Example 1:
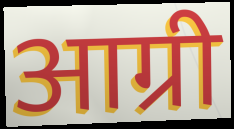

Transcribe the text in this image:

आग्री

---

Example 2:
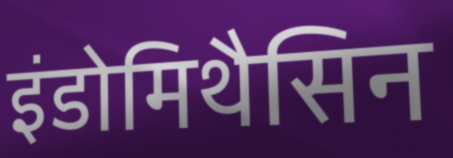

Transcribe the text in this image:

इंडोमिथैसिन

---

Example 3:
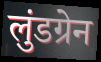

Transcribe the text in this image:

लुंडग्रेन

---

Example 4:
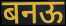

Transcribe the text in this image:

बनऊ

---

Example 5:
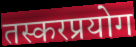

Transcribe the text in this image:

तस्करप्रयोग